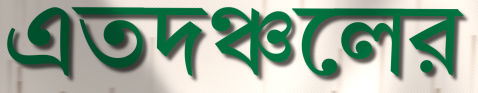
এতদঞ্চলের